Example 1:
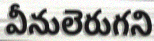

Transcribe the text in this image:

వీనులెరుగని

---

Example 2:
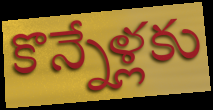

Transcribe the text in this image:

కొన్నేళ్లకు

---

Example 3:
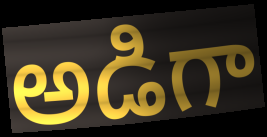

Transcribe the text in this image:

అడిగా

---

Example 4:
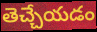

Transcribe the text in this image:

తెచ్చేయడం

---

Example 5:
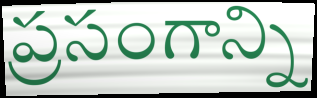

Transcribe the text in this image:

ప్రసంగాన్ని